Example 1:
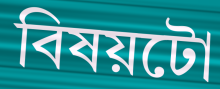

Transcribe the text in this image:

বিষয়টো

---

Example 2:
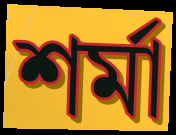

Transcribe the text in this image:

শৰ্মা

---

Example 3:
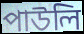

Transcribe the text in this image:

পাউলি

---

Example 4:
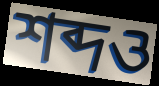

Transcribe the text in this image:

শব্দও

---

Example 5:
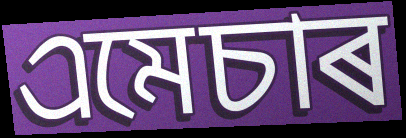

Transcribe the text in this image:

এমেচাৰ